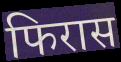
फिरास